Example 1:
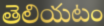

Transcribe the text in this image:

తెలియటం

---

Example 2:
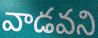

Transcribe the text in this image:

వాడవని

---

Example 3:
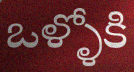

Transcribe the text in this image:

ఒళ్ళోకి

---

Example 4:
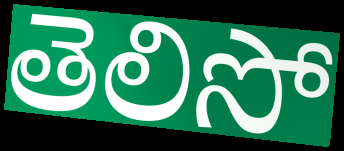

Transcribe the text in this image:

తెలిసో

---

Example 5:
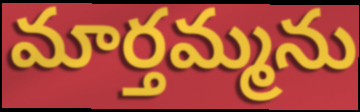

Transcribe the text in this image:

మార్తమ్మను